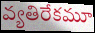
వ్యతిరేకమూ